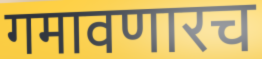
गमावणारच